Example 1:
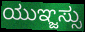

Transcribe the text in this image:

ಯುಞ್ಜಸ್ಸು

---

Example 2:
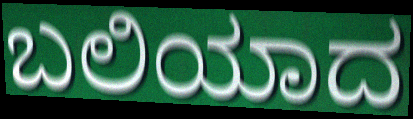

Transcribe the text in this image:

ಬಲಿಯಾದ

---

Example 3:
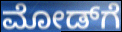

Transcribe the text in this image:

ಮೋಡ್‌ಗೆ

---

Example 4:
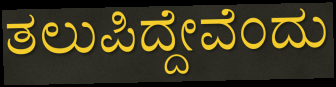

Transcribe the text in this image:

ತಲುಪಿದ್ದೇವೆಂದು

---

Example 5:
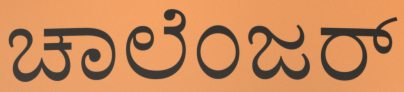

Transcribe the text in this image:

ಚಾಲೆಂಜರ್